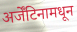
अर्जेंटिनामधून